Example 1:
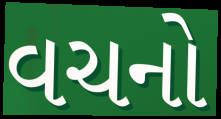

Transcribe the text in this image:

વચનો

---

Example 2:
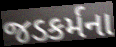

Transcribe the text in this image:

જડકર્મના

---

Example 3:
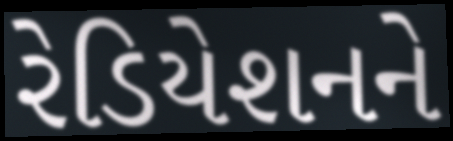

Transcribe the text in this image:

રેડિયેશનને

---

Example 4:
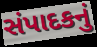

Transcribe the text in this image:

સંપાદકનું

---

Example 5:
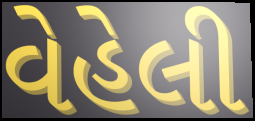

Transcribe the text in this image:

વેહેલી